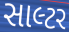
સાલ્ટર